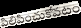
పిలిపించుకోవటం